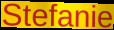
Stefanie